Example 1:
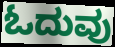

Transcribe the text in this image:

ಓದುವು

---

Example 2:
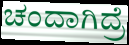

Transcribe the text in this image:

ಚಂದಾಗಿದ್ರೆ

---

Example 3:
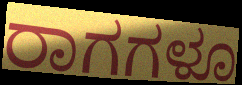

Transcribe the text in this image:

ರಾಗಗಳೂ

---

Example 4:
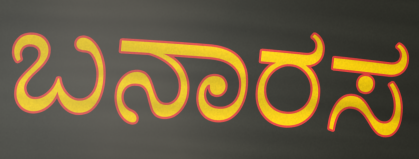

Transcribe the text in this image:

ಬನಾರಸ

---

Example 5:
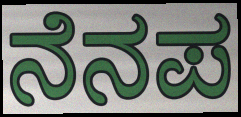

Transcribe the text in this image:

ನೆನಪ